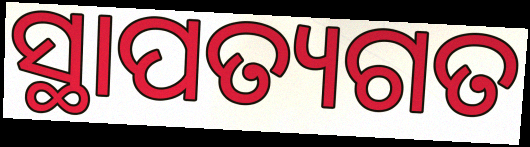
ସ୍ଥାପତ୍ୟଗତ